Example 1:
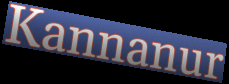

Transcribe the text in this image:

Kannanur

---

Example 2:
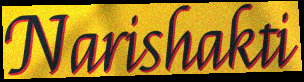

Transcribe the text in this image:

Narishakti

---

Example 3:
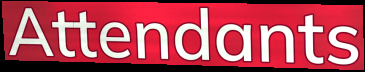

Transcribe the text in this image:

Attendants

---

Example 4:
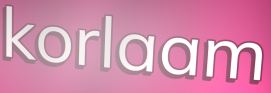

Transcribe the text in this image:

korlaam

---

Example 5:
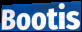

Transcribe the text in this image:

Bootis